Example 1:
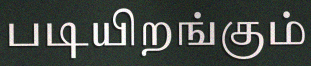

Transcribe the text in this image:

படியிறங்கும்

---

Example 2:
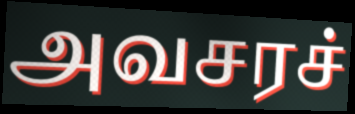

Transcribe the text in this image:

அவசரச்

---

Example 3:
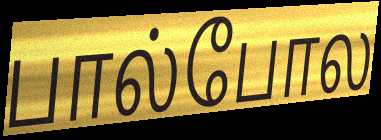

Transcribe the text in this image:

பால்போல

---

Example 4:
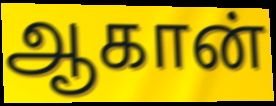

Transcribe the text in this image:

ஆகான்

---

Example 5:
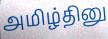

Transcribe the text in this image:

அமிழ்தினு